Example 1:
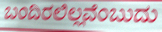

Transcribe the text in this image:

ಬಂದಿರಲಿಲ್ಲವೆಂಬುದು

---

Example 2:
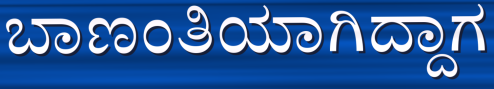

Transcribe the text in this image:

ಬಾಣಂತಿಯಾಗಿದ್ದಾಗ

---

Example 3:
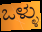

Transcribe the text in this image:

ಒಳ್ಳು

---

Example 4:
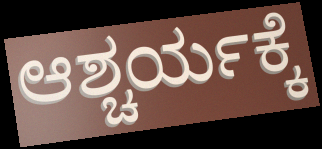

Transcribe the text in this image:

ಆಶ್ಚರ್ಯಕ್ಕೆ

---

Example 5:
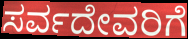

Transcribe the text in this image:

ಸರ್ವದೇವರಿಗೆ